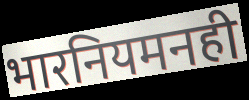
भारनियमनही